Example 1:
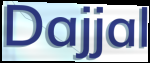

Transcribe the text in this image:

Dajjal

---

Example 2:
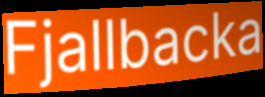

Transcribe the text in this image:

Fjallbacka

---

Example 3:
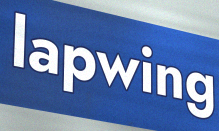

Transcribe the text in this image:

lapwing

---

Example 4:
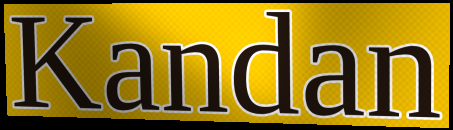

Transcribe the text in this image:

Kandan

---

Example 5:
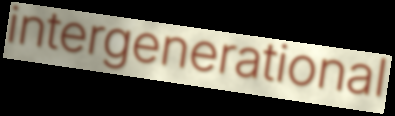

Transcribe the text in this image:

intergenerational